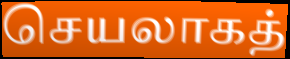
செயலாகத்